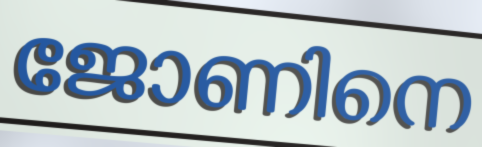
ജോണിനെ